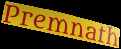
Premnath